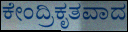
ಕೇಂದ್ರಿಕೃತವಾದ